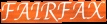
FAIRFAX